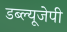
डब्ल्यूजेपी